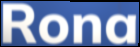
Rona